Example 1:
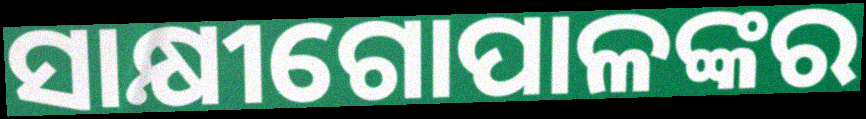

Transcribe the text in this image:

ସାକ୍ଷୀଗୋପାଳଙ୍କର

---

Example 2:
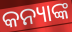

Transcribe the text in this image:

କନ୍ୟାଙ୍କ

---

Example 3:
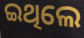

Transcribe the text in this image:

ଇଥିଲେ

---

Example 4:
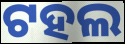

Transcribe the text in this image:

ଟହଲ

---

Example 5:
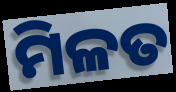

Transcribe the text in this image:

ମିଳତ